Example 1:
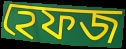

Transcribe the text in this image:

হেফজ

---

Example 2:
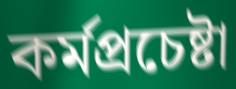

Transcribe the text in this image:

কর্মপ্রচেষ্টা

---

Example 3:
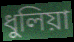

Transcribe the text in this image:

ধুলিয়া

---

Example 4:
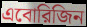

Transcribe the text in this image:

এবোরিজিন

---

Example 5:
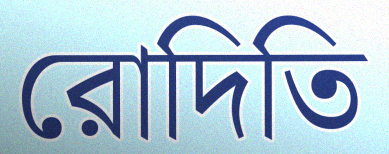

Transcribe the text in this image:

রোদিতি